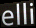
elli